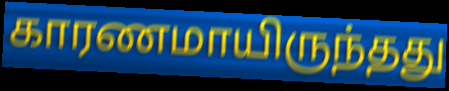
காரணமாயிருந்தது